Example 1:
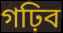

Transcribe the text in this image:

গঢ়িব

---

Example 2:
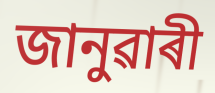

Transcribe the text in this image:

জানুৱাৰী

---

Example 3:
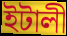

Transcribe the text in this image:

ইটালী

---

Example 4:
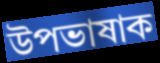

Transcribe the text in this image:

উপভাষাক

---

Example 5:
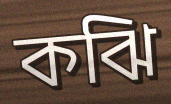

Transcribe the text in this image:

কঝি